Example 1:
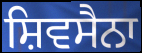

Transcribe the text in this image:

ਸ਼ਿਵਸੈਨਾ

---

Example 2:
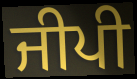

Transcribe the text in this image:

ਜੀਪੀ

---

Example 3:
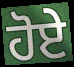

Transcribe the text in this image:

ਹੋਏੇ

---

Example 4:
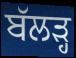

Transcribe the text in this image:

ਬੱਲੜ੍ਹ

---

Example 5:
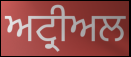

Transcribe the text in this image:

ਅਟ੍ਰੀਅਲ